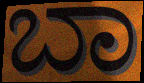
ಬಾ